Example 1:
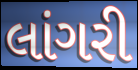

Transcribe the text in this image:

લાંગરી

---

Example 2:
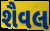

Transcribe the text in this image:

શૈવલ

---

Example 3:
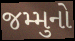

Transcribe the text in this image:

જમ્મુનો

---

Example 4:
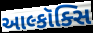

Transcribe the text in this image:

આલ્કૉક્સિ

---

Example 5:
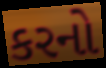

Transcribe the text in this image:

કરનો